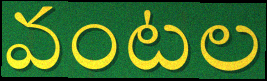
వంటల